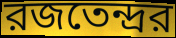
রজতেন্দ্রর